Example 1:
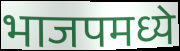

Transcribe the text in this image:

भाजपमध्ये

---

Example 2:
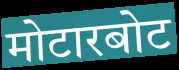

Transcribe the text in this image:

मोटारबोट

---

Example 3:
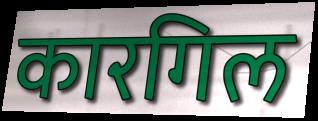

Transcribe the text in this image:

कारगिल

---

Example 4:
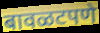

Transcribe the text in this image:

बावळटपणे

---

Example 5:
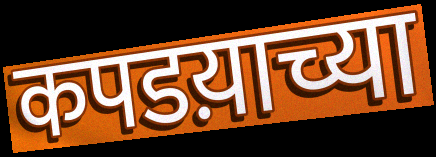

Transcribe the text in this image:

कपडय़ाच्या